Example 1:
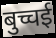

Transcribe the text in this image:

बुच्चई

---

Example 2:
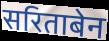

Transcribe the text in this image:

सरिताबेन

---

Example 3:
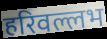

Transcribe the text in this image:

हरिवल्लभ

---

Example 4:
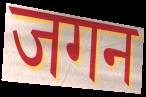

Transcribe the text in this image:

जगन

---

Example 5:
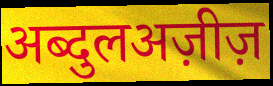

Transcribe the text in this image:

अब्दुलअज़ीज़